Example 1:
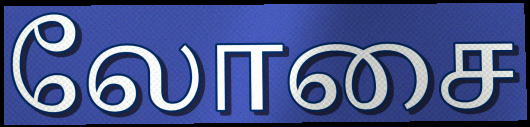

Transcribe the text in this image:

லோசை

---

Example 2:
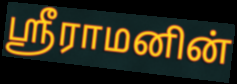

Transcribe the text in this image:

ஸ்ரீராமனின்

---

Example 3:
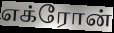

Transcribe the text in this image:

எக்ரோன்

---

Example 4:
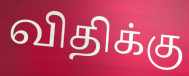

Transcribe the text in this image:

விதிக்கு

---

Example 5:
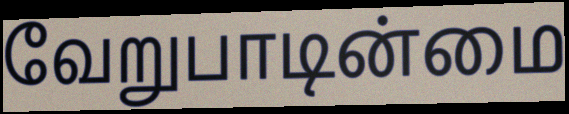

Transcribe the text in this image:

வேறுபாடின்மை